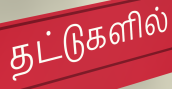
தட்டுகளில்